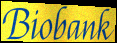
Biobank